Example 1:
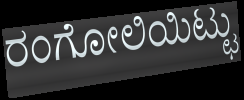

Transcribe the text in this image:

ರಂಗೋಲಿಯಿಟ್ಟು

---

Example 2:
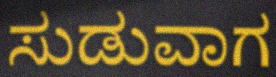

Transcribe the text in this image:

ಸುಡುವಾಗ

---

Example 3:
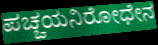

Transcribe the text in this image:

ಪಚ್ಚಯನಿರೋಧೇನ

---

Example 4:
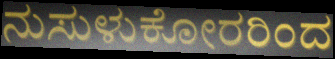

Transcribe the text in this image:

ನುಸುಳುಕೋರರಿಂದ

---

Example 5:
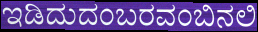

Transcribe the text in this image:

ಇಡಿದುದಂಬರವಂಬಿನಲಿ